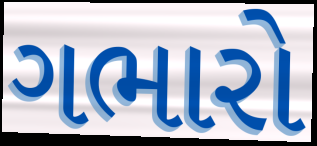
ગભારો